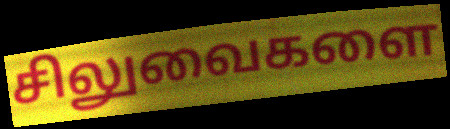
சிலுவைகளை